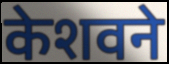
केशवने